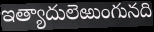
ఇత్యాదులెఱుంగునది